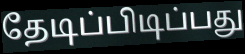
தேடிப்பிடிப்பது